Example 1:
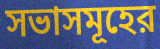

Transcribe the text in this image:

সভাসমূহের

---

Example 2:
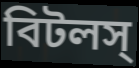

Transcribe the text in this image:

বিটলস্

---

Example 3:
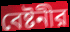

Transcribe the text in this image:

বেষ্টনীর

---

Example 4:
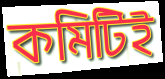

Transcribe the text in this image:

কমিটিই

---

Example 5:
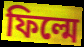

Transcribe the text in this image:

ফিল্মে